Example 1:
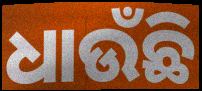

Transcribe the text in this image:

ଧାଉଁଛି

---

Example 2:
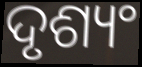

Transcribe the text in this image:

ଦୃଶ୍ୟଂ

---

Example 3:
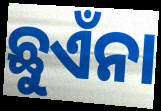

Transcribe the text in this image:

ଛୁଏଁନା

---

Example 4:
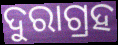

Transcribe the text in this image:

ଦୁରାଗ୍ରହ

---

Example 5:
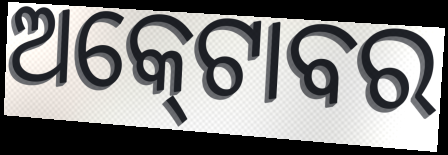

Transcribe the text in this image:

ଅକ୍‍ଟୋବର